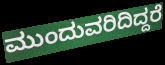
ಮುಂದುವರಿದಿದ್ದರೆ